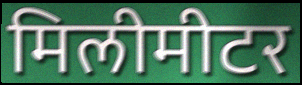
मिलीमीटर